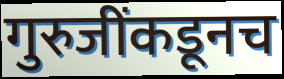
गुरुजींकडूनच